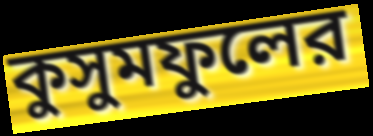
কুসুমফুলের